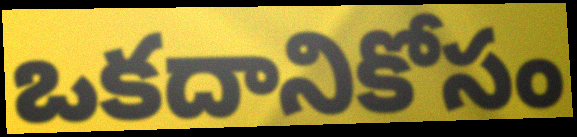
ఒకదానికోసం